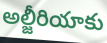
అల్జీరియాకు